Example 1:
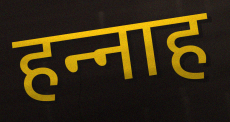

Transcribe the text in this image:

हन्नाह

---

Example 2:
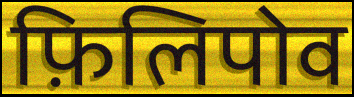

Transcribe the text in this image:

फ़िलिपोव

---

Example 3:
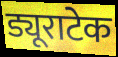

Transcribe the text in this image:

ड्यूराटेक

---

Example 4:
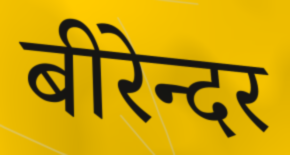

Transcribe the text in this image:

बीरेन्दर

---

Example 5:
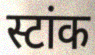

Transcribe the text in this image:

स्टांक